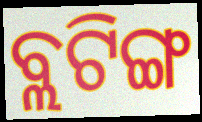
ବ୍ଲଟିଙ୍ଗ